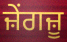
ਜ਼ੇਂਗਜ਼ੂ